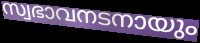
സ്വഭാവനടനായും